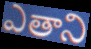
ఎతాని